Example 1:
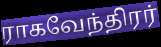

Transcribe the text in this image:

ராகவேந்திரர்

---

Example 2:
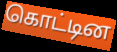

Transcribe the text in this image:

கொட்டின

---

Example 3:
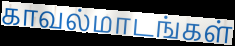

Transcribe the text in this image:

காவல்மாடங்கள்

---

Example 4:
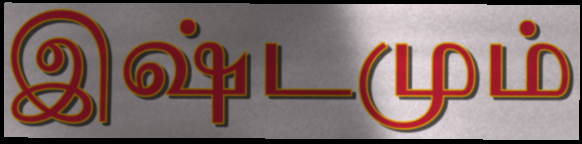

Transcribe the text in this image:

இஷ்டமும்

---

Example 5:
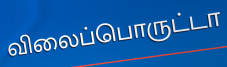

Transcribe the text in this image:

விலைப்பொருட்டா